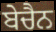
ਬੇਚੈਨ